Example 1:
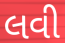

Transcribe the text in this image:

લવી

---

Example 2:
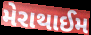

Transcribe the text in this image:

મેરાથાઈમ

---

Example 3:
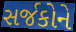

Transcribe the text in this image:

સર્જકોને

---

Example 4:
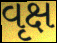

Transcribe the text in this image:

વૃક્ષ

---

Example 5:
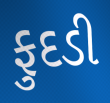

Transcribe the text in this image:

ફુદડી